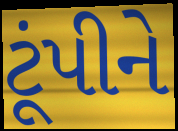
ટૂંપીને